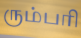
ரும்பரி